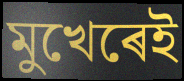
মুখেৰেই